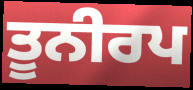
ਤੂਨੀਰਪ